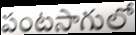
పంటసాగులో